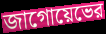
জাগোয়েভের